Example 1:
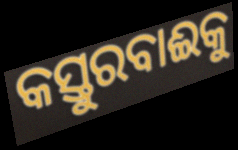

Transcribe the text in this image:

କସ୍ତୁରବାଈକୁ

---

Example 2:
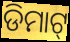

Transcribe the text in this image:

ଡିମାଟ୍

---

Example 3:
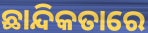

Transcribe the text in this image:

ଛାନ୍ଦିକତାରେ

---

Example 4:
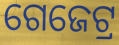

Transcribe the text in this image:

ଗେଜେଟ୍ର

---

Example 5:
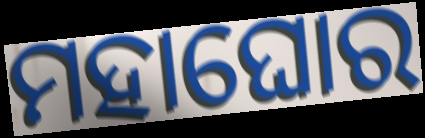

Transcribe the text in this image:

ମହାଘୋର